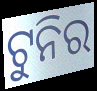
ଟୁନିର